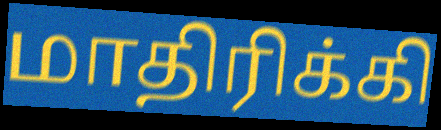
மாதிரிக்கி